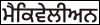
ਮੈਕਿਵੇਲੀਅਨ